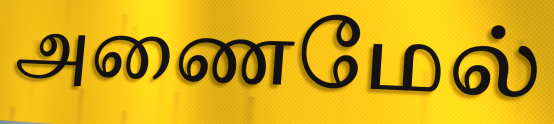
அணைமேல்